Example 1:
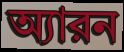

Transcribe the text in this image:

অ্যারন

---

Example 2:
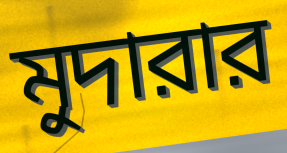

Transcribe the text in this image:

মুদারার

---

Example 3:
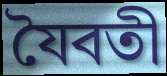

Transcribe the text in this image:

যৈবতী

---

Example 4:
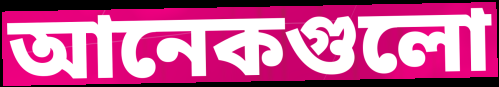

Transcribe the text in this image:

আনেকগুলো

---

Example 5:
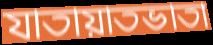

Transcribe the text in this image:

যাতায়াতভাতা